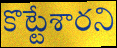
కొట్టేశారని